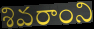
శివరాంని